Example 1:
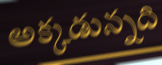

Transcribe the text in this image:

అక్కడున్నది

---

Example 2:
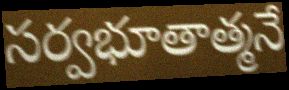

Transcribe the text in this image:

సర్వభూతాత్మనే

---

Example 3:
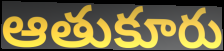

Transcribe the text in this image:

ఆతుకూరు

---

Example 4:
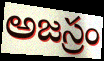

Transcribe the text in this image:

అజస్రం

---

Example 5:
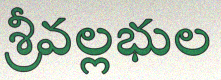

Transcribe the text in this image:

శ్రీవల్లభుల